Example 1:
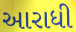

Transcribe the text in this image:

આરાધી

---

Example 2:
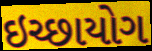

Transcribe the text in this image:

ઇચ્છાયોગ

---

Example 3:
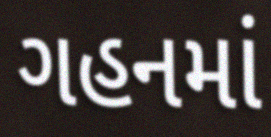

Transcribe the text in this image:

ગહનમાં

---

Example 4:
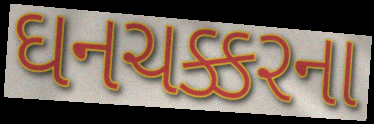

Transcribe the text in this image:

ઘનચક્કરના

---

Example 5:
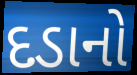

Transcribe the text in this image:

દડાનો